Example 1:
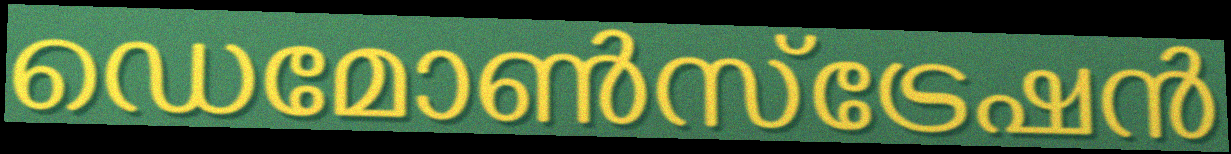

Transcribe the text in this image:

ഡെമോൺസ്ട്രേഷൻ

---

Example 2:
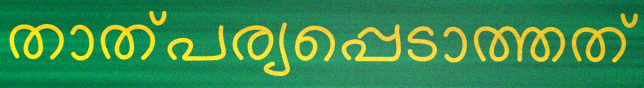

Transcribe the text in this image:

താത്പര്യപ്പെടാത്തത്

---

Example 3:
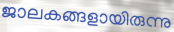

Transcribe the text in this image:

ജാലകങ്ങളായിരുന്നു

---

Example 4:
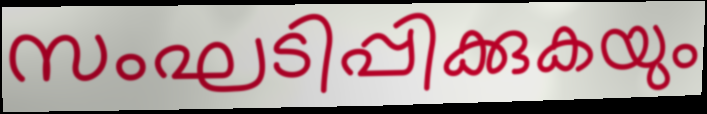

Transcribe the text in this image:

സംഘടിപ്പിക്കുകയും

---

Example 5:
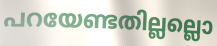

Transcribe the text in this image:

പറയേണ്ടതില്ലല്ലൊ